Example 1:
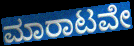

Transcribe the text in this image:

ಮಾರಾಟವೇ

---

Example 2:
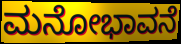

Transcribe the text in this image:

ಮನೋಭಾವನೆ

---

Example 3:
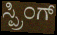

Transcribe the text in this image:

ಸ್ಪ್ರಿಂಗ್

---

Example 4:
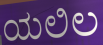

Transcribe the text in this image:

ಯಲಿಲ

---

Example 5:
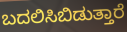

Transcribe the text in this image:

ಬದಲಿಸಿಬಿಡುತ್ತಾರೆ